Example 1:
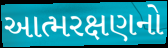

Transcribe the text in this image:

આત્મરક્ષણનો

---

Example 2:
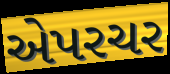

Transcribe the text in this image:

એપરચર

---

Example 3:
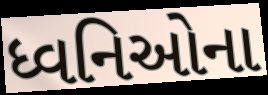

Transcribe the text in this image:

ધ્વનિઓના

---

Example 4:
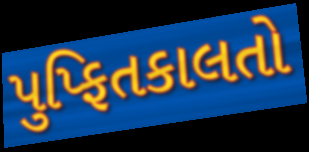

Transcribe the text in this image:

પુપ્ફિતકાલતો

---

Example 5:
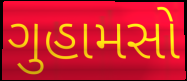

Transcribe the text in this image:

ગુહામસો